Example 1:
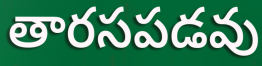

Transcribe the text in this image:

తారసపడవు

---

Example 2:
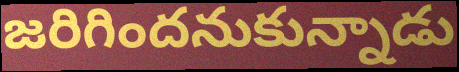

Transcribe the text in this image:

జరిగిందనుకున్నాడు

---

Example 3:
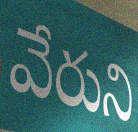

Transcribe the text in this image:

వేరుని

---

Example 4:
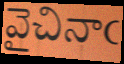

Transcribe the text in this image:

వైచినాఁ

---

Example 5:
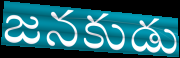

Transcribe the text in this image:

జనకుడు